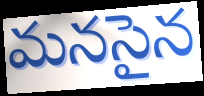
మనసైన